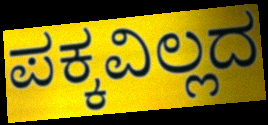
ಪಕ್ಕವಿಲ್ಲದ